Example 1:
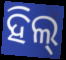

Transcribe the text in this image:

ହିଲ୍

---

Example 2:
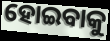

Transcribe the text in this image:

ହୋଇବାକୁ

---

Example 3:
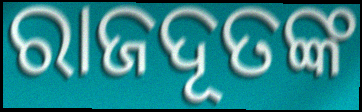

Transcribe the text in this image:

ରାଜଦୂତଙ୍କ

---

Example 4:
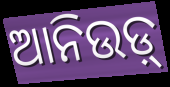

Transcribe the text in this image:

ଆନିଉଡ଼୍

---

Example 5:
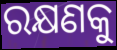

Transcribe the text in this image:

ରକ୍ଷଣକୁ